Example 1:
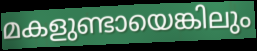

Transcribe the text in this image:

മകളുണ്ടായെങ്കിലും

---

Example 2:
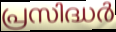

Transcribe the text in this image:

പ്രസിദ്ധർ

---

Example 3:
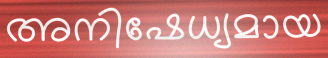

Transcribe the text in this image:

അനിഷേധ്യമായ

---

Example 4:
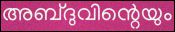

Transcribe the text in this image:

അബ്ദുവിന്റെയും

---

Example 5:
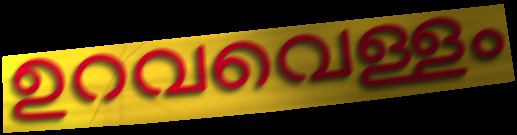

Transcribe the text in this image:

ഉറവവെള്ളം